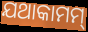
ଯଥାକାମମ୍